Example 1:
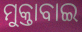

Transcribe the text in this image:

ମୁକ୍ତାବାଇ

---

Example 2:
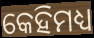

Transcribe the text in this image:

କେହିମଧ୍ୟ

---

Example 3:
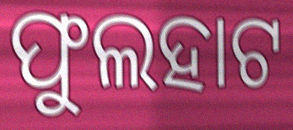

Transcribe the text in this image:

ଫୁଲହାଟ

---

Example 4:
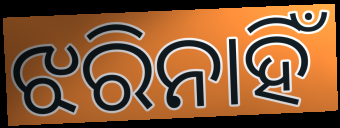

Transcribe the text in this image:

ଝରିନାହିଁ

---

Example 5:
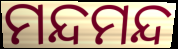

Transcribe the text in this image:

ମନ୍ଦମନ୍ଦ